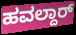
ಹವಲ್ದಾರ್